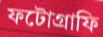
ফটোগ্রাফি